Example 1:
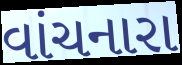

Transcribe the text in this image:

વાંચનારા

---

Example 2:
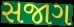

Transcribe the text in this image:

સજાગ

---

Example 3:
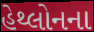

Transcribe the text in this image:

હેથ્લોનના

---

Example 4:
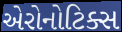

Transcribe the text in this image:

એરોનોટિક્સ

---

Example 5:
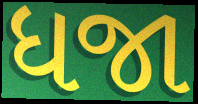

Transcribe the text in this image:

ધજા